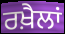
ਰਖ਼ੈਲਾਂ